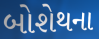
બોશેથના